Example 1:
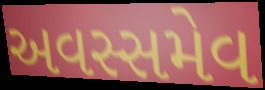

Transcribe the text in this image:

અવસ્સમેવ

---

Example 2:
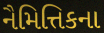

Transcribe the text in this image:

નૈમિત્તિકના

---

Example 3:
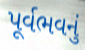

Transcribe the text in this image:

પૂર્વભવનું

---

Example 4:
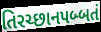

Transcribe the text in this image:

તિરચ્છાનપબ્બતં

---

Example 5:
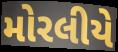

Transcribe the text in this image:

મોરલીયે